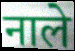
नाले